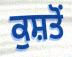
ਕੁਸ਼ਤੋਂ